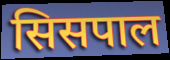
सिसपाल